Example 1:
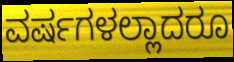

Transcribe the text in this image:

ವರ್ಷಗಳಲ್ಲಾದರೂ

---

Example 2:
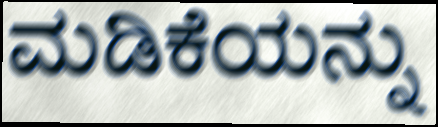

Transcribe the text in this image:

ಮಡಿಕೆಯನ್ನು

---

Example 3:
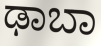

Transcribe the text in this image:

ಢಾಬಾ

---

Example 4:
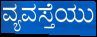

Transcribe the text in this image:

ವ್ಯವಸ್ತೆಯು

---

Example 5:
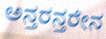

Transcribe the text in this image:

ಅನ್ತರನ್ತರೇನ